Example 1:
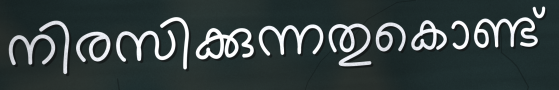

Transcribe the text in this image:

നിരസിക്കുന്നതുകൊണ്ട്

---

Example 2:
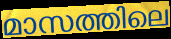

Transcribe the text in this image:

മാസത്തിലെ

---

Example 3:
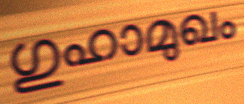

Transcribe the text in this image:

ഗുഹാമുഖം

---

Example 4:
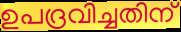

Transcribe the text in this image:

ഉപദ്രവിച്ചതിന്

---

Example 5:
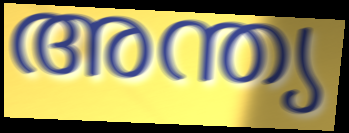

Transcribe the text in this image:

അന്ത്യ